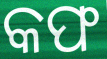
କଫ